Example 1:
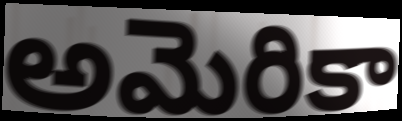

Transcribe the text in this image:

అమెరికా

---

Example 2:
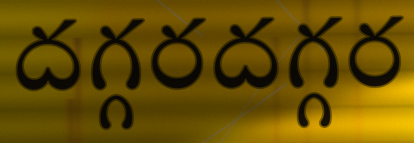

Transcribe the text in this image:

దగ్గరదగ్గర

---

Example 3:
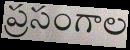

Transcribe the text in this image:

ప్రసంగాల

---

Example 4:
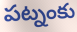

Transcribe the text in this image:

పట్నంకు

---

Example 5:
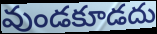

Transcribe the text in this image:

వుండకూడదు